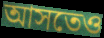
আসতেও